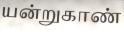
யன்றுகாண்